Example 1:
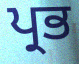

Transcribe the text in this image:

ਪ੍ਰਭ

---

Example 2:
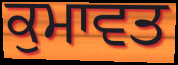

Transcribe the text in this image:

ਕੁਮਾਵਤ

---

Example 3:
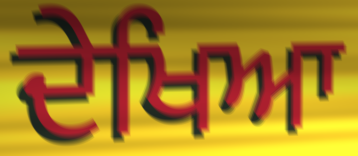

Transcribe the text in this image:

ਦੇਖਿਆ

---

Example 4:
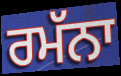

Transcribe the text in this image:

ਰਮੱਨਾ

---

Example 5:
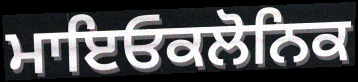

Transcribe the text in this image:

ਮਾਇਓਕਲੋਨਿਕ